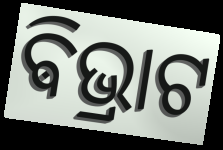
ଵିଭ୍ରାଟ